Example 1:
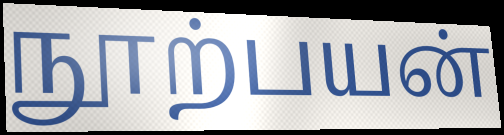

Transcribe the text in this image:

நூற்பயன்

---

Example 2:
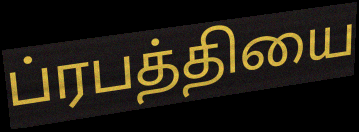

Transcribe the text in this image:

ப்ரபத்தியை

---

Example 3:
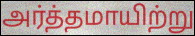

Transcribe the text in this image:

அர்த்தமாயிற்று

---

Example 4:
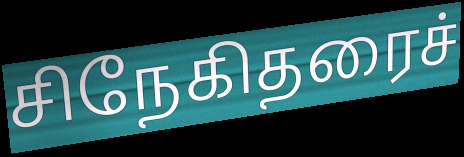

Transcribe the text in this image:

சிநேகிதரைச்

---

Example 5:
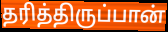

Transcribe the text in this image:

தரித்திருப்பான்